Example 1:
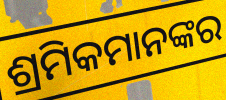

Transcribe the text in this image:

ଶ୍ରମିକମାନଙ୍କର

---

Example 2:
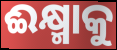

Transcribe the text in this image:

ଈକ୍ଷ୍ମାକୁ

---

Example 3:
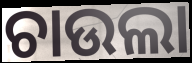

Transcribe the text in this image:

ଚାଉଲା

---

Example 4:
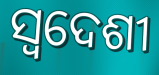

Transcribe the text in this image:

ସ୍ଵଦେଶୀ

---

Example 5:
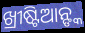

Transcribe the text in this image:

ଖ୍ରୀଷ୍ଟିଆନ୍ଙ୍କ